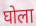
घोला